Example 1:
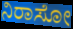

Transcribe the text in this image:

ನಿರಾಸೋ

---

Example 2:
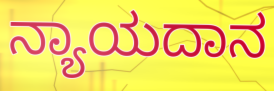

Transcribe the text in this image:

ನ್ಯಾಯದಾನ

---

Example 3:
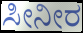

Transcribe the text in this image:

ಸೀನೀರ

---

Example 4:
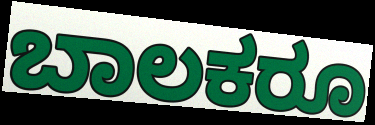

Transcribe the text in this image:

ಬಾಲಕರೂ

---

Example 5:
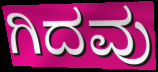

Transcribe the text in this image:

ಗಿದವು